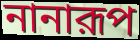
নানারূপ